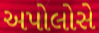
અપોલોસે